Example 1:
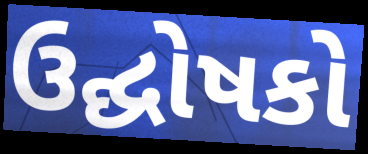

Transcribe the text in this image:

ઉદ્ઘોષકો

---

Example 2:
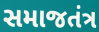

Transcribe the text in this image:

સમાજતંત્ર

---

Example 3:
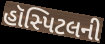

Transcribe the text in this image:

હૉસ્પિટલની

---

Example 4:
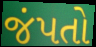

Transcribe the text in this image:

જંપતો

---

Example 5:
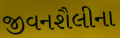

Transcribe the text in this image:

જીવનશૈલીના